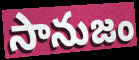
సానుజం